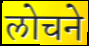
लोचने